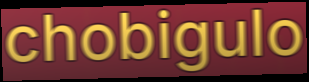
chobigulo